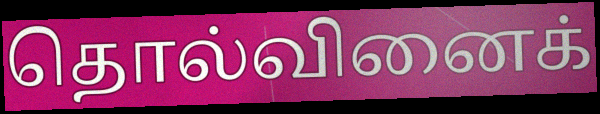
தொல்வினைக்